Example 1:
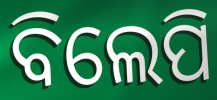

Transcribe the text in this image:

ବିଲେପି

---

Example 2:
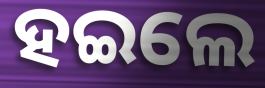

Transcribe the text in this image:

ହଇଲେ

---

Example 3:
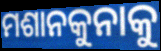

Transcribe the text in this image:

ମଶାନକୁନାକୁ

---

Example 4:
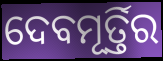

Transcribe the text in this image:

ଦେବମୂର୍ତ୍ତିର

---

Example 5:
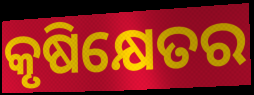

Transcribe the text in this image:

କୃଷିକ୍ଷେତର